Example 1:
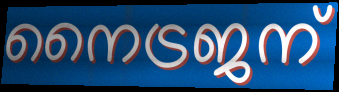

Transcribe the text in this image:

നൈട്രജന്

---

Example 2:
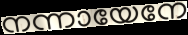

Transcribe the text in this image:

നന്നായേനേ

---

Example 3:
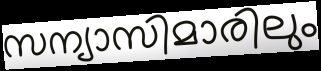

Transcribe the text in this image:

സന്യാസിമാരിലും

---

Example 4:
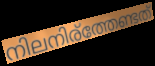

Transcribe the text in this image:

നിലനിര്ത്തേണ്ടത്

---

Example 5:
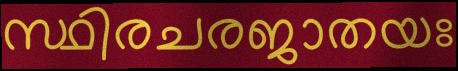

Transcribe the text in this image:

സ്ഥിരചരജാതയഃ